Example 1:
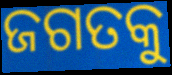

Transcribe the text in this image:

ଜଗତକୁ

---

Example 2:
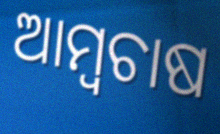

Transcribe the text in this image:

ଆମ୍ୱଚାଷ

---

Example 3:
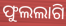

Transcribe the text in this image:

ଫୁଲଲାଗି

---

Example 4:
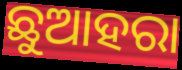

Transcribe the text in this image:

ଛୁଆହରା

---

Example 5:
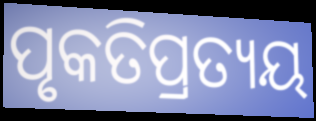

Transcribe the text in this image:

ପୃକତିପ୍ରତ୍ୟୟ